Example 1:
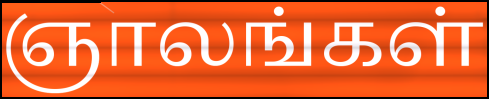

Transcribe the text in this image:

ஞாலங்கள்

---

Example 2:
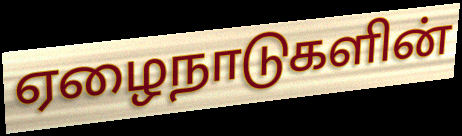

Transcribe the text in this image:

ஏழைநாடுகளின்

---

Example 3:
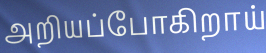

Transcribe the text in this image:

அறியப்போகிறாய்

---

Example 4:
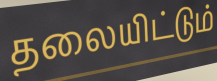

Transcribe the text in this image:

தலையிட்டும்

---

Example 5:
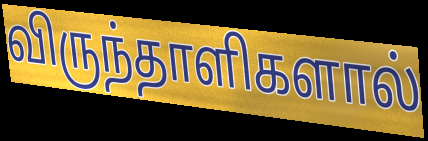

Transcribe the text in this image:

விருந்தாளிகளால்